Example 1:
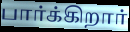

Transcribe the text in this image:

பார்க்கிறார்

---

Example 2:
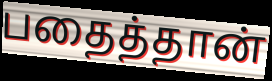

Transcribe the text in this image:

பதைத்தான்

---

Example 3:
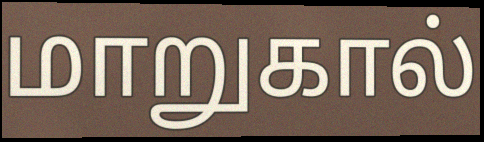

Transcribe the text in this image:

மாறுகால்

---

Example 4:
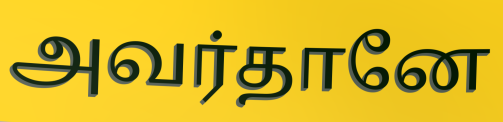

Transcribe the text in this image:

அவர்தானே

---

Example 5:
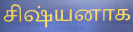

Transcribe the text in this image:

சிஷ்யனாக